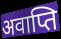
अवाप्ति